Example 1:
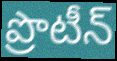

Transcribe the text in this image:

ప్రొటీన్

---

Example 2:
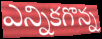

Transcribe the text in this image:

ఎన్నికగొన్న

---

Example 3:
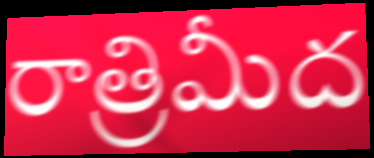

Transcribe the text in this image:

రాత్రిమీద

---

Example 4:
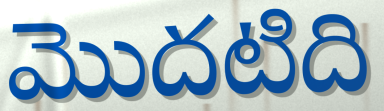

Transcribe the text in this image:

మొదటిది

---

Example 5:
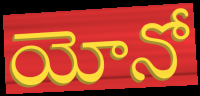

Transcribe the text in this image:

యోనో